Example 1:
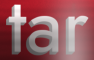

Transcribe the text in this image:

tar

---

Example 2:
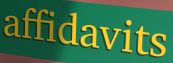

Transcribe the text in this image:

affidavits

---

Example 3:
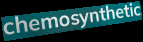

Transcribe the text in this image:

chemosynthetic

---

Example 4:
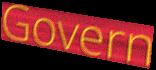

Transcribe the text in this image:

Govern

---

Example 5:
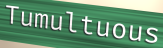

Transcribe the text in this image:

Tumultuous